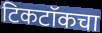
टिकटॉकचा